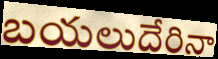
బయలుదేరినా